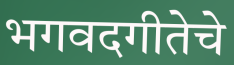
भगवदगीतेचे